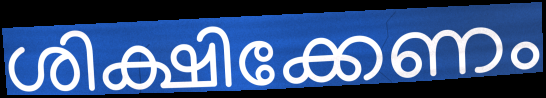
ശിക്ഷിക്കേണം